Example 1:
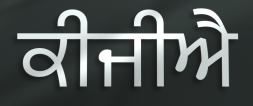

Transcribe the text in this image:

ਕੀਜੀਐ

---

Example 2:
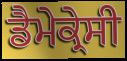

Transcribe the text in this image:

ਡੈਮੇਕ੍ਰੇਸੀ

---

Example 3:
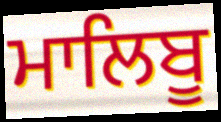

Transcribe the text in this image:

ਮਾਲਿਬੂ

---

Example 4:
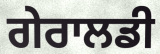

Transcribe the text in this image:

ਗੇਰਾਲਡੀ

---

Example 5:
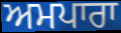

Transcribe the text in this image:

ਅਮਪਾਰਾ